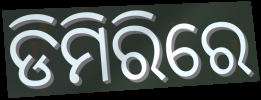
ଡିମିରିରେ